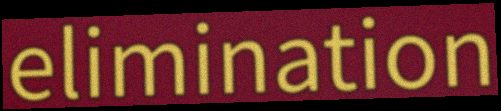
elimination